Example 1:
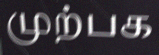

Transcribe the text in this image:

முற்பக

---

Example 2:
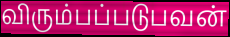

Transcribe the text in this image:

விரும்பப்படுபவன்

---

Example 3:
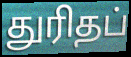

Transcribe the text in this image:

துரிதப்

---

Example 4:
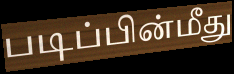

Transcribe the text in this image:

படிப்பின்மீது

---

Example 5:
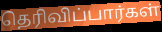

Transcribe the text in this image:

தெரிவிப்பார்கள்